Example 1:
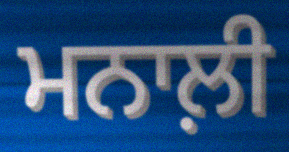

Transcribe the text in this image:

ਮਨਾਲ਼ੀ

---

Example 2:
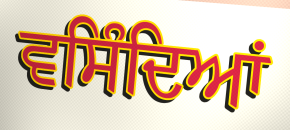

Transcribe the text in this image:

ਵਸਿੰਦਿਆਂ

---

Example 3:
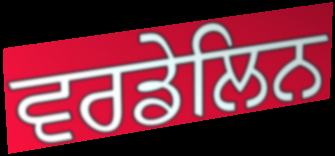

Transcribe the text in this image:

ਵਰਡੇਲਿਨ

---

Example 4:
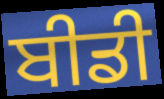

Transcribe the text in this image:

ਬੀਡੀ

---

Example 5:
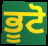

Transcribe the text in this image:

ਭੂਟੋ